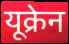
यूक्रेन